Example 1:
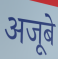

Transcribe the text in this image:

अजूबे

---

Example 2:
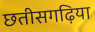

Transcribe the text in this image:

छतीसगढ़िया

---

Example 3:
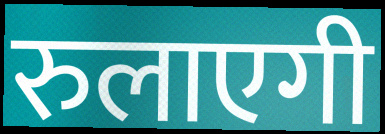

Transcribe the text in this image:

रुलाएगी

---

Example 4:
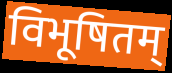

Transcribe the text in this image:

विभूषितम्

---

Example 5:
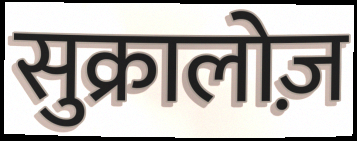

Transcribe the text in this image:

सुक्रालोज़